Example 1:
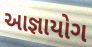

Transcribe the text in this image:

આજ્ઞાયોગ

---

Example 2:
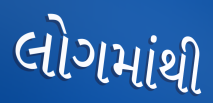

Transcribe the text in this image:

લોગમાંથી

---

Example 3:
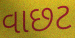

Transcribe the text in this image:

વાછટ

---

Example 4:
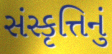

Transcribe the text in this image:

સંસ્કૃત્તિનું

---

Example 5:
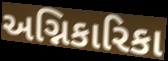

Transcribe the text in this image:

અગ્નિકારિકા